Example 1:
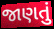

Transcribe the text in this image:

જાણતું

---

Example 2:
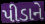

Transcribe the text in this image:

પીડાને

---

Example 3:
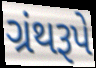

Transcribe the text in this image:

ગ્રંથરૂપે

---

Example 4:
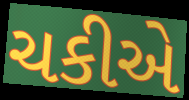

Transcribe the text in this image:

ચકીએ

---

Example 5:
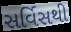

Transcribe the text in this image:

સર્વિસથી